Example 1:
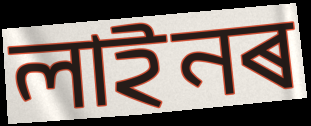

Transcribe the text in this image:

লাইনৰ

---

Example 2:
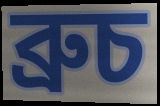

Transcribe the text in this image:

ব্ৰুচ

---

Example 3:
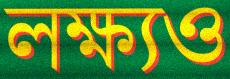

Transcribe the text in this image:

লক্ষ্যও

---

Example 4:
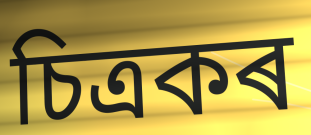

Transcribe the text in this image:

চিত্ৰকৰ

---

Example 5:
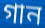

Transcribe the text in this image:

গান